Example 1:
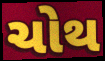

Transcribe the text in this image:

ચોથ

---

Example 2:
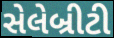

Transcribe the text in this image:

સેલેબ્રીટી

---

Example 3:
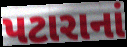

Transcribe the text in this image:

પટારાનાં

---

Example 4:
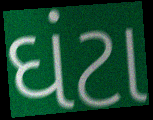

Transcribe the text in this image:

ઘંટા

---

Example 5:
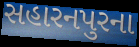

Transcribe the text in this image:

સહારનપુરના